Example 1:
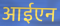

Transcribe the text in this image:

आईएन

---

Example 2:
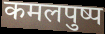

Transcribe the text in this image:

कमलपुष्प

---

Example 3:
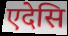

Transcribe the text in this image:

एदेसि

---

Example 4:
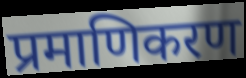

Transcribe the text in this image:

प्रमाणिकरण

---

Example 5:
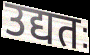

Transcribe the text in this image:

उद्यतः